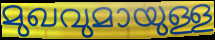
മുഖവുമായുള്ള